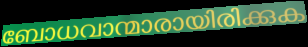
ബോധവാന്മാരായിരിക്കുക